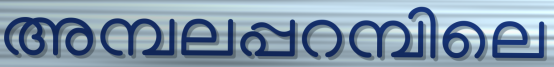
അമ്പലപ്പറമ്പിലെ